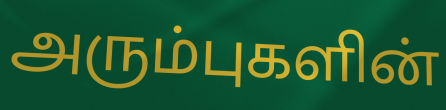
அரும்புகளின்